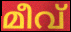
മീവ്